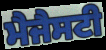
ਮੈਜੈਸਟੀ